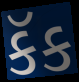
કૅક